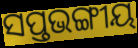
ସପ୍ତଭଙ୍ଗୀୟ